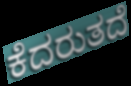
ಕೆದರುತದೆ